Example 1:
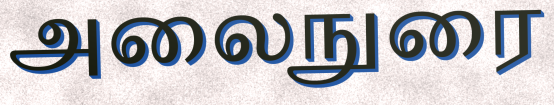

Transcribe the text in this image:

அலைநுரை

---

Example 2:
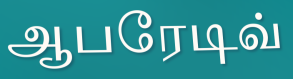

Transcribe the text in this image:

ஆபரேடிவ்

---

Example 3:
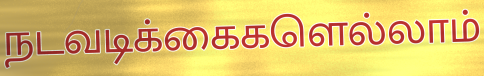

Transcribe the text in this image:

நடவடிக்கைகளெல்லாம்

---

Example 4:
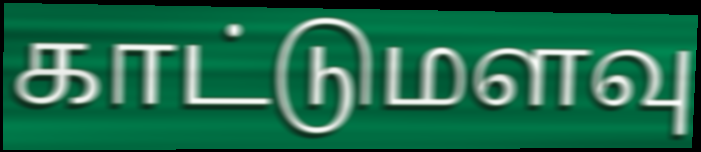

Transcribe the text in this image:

காட்டுமளவு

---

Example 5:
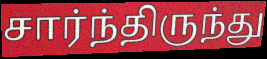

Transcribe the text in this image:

சார்ந்திருந்து